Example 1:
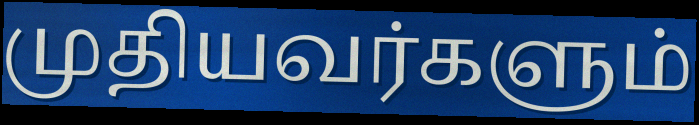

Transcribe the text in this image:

முதியவர்களும்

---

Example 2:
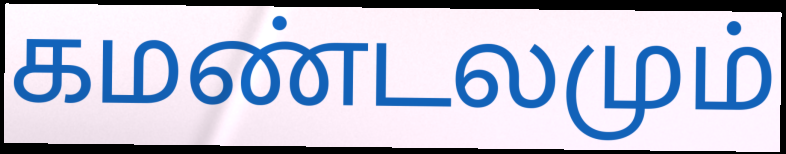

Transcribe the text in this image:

கமண்டலமும்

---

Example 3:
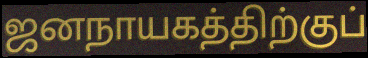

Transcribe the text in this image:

ஜனநாயகத்திற்குப்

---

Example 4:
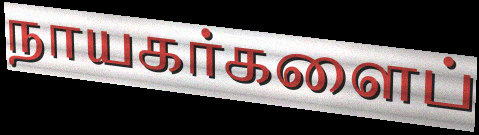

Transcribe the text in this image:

நாயகர்களைப்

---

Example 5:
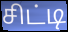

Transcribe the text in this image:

சிட்டி